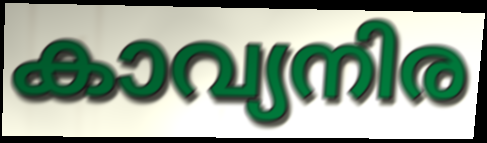
കാവ്യനിര